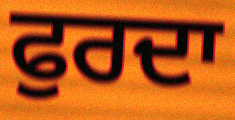
ਫੁਰਦਾ